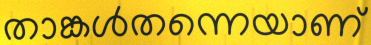
താങ്കൾതന്നെയാണ്